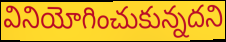
వినియోగించుకున్నదని